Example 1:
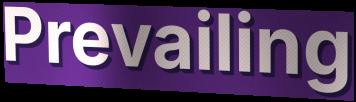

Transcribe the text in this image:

Prevailing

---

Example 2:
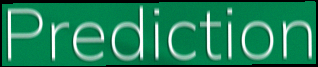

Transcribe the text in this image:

Prediction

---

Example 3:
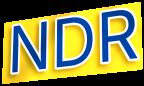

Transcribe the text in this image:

NDR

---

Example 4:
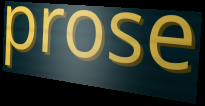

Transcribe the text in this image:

prose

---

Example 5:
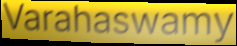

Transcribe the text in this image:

Varahaswamy